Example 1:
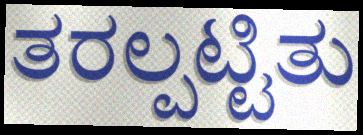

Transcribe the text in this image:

ತರಲ್ಪಟ್ಟಿತು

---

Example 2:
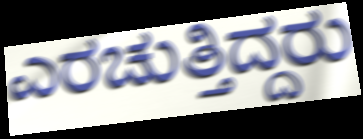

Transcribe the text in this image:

ಎರಚುತ್ತಿದ್ದರು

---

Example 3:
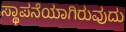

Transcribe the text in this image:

ಸ್ಥಾಪನೆಯಾಗಿರುವುದು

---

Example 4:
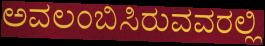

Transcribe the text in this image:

ಅವಲಂಬಿಸಿರುವವರಲ್ಲಿ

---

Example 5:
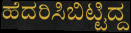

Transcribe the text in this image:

ಹೆದರಿಸಿಬಿಟ್ಟಿದ್ದ